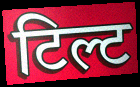
टिल्ट